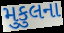
મુકુલના